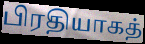
பிரதியாகத்